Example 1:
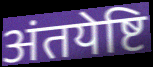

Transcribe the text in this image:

अंतयेष्टि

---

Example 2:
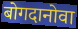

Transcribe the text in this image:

बोगदानोवा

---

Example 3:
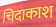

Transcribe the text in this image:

चिदाकाश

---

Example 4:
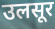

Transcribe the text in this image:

उलसूर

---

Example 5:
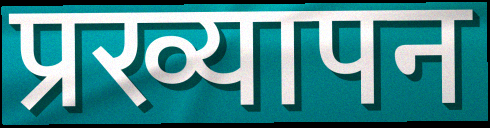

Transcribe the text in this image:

प्रख्यापन